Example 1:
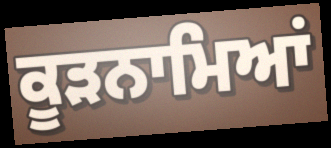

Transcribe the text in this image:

ਕੂੜਨਾਮਿਆਂ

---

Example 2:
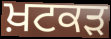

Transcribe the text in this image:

ਖ਼ਟਕੜ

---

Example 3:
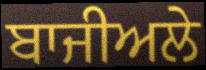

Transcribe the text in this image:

ਬਾਜੀਅਲੇ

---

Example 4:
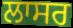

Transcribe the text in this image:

ਲਾਸਰ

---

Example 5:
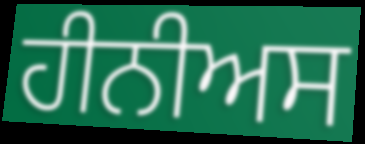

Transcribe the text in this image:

ਹੀਨੀਅਸ